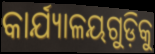
କାର୍ଯ୍ୟାଳୟଗୁଡ଼ିକୁ